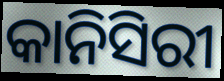
କାନିସିରୀ